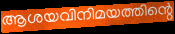
ആശയവിനിമയത്തിന്റെ